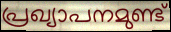
പ്രഖ്യാപനമുണ്ട്